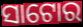
ସାଟୋର